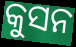
କୁସନ